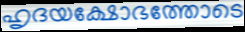
ഹൃദയക്ഷോഭത്തോടെ